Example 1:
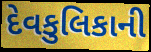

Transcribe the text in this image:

દેવકુલિકાની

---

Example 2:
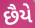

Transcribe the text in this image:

છૈયે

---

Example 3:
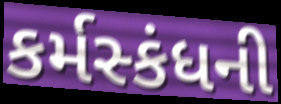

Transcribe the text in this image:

કર્મસ્કંધની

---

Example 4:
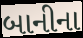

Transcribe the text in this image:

બાનીના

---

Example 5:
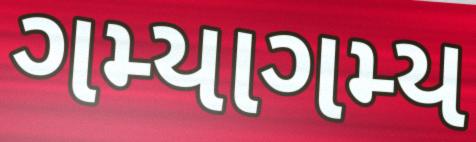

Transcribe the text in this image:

ગમ્યાગમ્ય